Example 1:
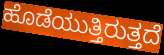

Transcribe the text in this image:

ಹೊಡೆಯುತ್ತಿರುತ್ತದೆ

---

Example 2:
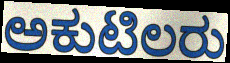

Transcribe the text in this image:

ಅಕುಟಿಲರು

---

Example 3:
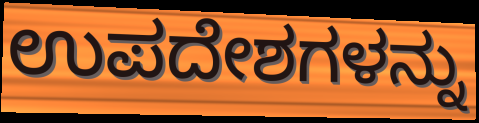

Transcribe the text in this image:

ಉಪದೇಶಗಳನ್ನು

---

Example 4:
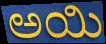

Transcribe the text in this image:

ಅಯಿ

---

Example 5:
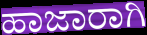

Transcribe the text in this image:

ಹಾಜಾರಾಗಿ